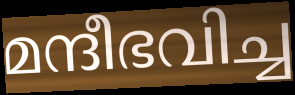
മന്ദീഭവിച്ച